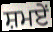
ਸ਼ਮਏਂ